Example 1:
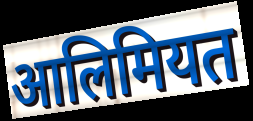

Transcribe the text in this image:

आलिमियत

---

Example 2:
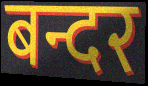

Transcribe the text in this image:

बन्दर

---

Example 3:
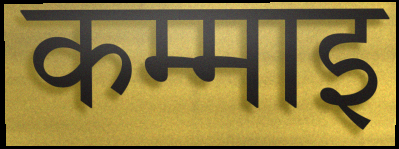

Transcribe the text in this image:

कम्माइ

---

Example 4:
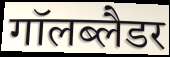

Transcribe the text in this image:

गॉलब्लैडर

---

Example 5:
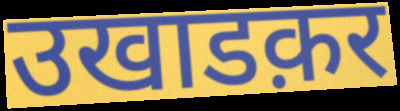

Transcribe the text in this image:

उखाडक़र